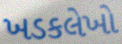
ખડકલેખો